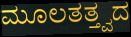
ಮೂಲತತ್ತ್ವದ